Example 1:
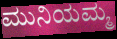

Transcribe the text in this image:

ಮುನಿಯಮ್ಮ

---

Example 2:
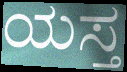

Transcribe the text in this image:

ಯಸ್ತ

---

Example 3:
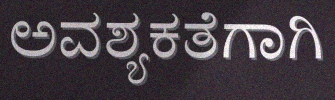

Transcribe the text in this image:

ಅವಶ್ಯಕತೆಗಾಗಿ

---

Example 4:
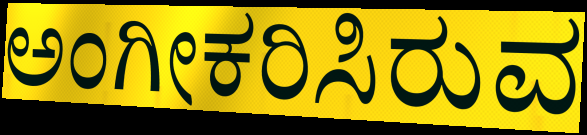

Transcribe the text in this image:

ಅಂಗೀಕರಿಸಿರುವ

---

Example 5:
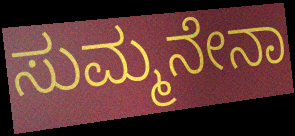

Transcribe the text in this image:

ಸುಮ್ಮನೇನಾ